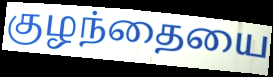
குழந்தையை